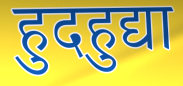
हुदहुद्या